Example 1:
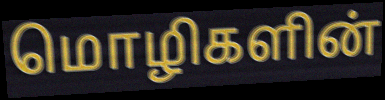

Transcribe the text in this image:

மொழிகளின்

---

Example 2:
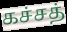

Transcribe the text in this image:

கச்சத்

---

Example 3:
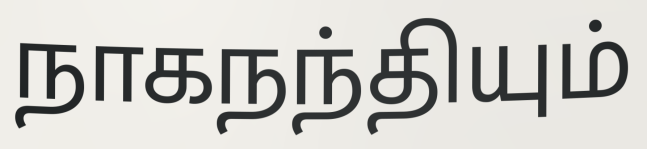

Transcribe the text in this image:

நாகநந்தியும்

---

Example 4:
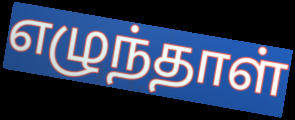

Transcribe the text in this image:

எழுந்தாள்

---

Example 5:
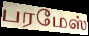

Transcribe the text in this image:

பரமேஸ்